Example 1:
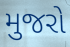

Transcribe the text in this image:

મુજરો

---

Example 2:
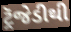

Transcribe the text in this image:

ટ્રૅજેડીથી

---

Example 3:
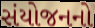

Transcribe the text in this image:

સંયોજનનો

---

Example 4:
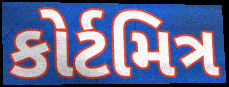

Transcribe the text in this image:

કોર્ટમિત્ર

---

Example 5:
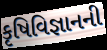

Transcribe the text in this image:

કૃષિવિજ્ઞાનની